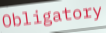
Obligatory